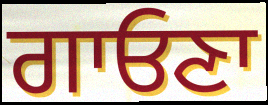
ਗਾਓਣਾ